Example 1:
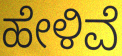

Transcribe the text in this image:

ಹೇಳಿವೆ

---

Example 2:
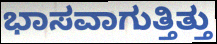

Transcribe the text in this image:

ಭಾಸವಾಗುತ್ತಿತ್ತು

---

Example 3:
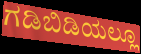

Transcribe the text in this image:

ಗಡಿಬಿಡಿಯಲ್ಲೂ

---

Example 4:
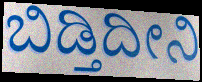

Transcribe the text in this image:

ಬಿಡ್ತಿದೀನಿ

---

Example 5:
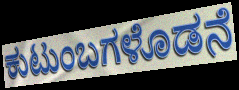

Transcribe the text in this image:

ಕುಟುಂಬಗಳೊಡನೆ